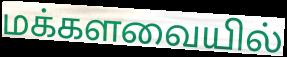
மக்களவையில்